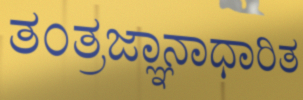
ತಂತ್ರಜ್ಞಾನಾಧಾರಿತ